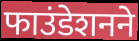
फाउंडेशनने